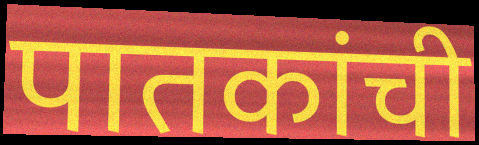
पातकांची